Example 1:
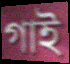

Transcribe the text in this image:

গাই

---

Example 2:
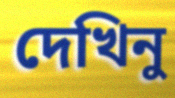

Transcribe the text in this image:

দেখিনু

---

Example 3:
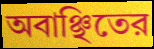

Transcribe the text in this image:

অবাঞ্ছিতের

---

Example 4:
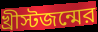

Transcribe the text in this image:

খ্রীস্টজন্মের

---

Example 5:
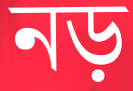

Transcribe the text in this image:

নড়